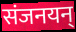
संजनयन्